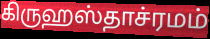
கிருஹஸ்தாச்ரமம்